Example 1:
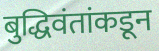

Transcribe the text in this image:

बुद्धिवंतांकडून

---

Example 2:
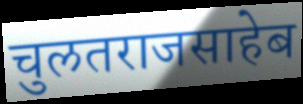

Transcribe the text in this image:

चुलतराजसाहेब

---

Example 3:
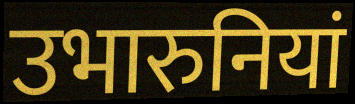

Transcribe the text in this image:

उभारुनियां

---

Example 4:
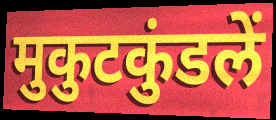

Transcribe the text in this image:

मुकुटकुंडलें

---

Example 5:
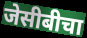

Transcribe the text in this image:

जेसीबीचा